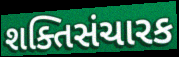
શક્તિસંચારક